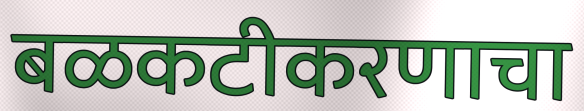
बळकटीकरणाचा